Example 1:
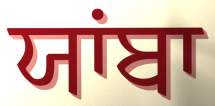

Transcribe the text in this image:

ਯਾਂਬਾ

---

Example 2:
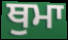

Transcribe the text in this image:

ਥੁਮਾ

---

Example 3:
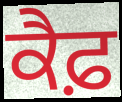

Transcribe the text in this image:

ਕੈਫ਼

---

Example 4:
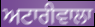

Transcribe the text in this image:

ਅਟਾਰੀਵਾਲਾ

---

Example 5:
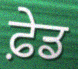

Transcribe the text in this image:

ਫ਼ੇਡ